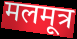
मलमूत्र